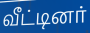
வீட்டினர்